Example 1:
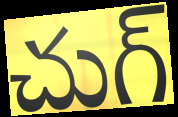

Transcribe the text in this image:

చుగ్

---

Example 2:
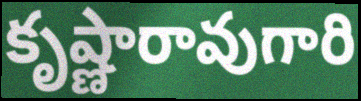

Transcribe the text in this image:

కృష్ణారావుగారి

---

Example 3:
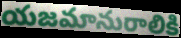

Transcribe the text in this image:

యజమానురాలికి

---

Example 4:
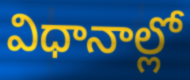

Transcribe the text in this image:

విధానాల్లో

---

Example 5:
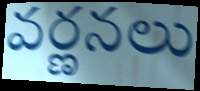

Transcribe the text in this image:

వర్ణనలు